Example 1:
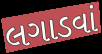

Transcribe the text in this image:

લગાડવાં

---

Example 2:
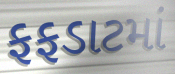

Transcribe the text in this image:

ફફડાટમાં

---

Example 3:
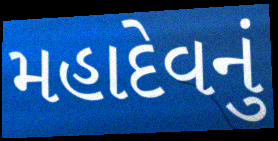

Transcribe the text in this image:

મહાદેવનું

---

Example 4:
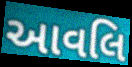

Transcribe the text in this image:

આવલિ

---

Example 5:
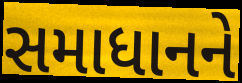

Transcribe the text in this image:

સમાધાનને